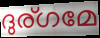
ദുര്ഗമേ